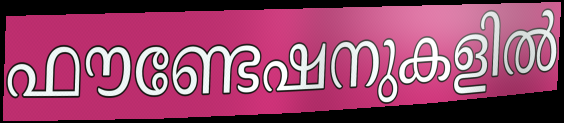
ഫൗണ്ടേഷനുകളിൽ